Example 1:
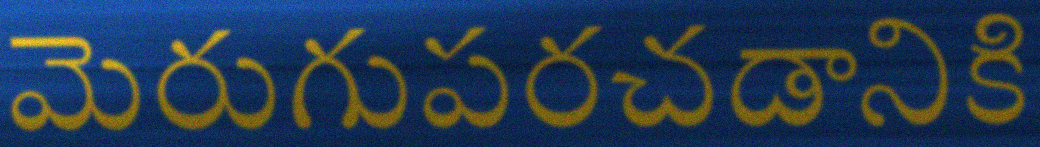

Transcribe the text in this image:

మెరుగుపరచడానికి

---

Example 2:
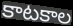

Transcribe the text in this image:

కాటకాల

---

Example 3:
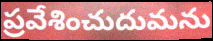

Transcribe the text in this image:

ప్రవేశించుదుమను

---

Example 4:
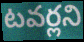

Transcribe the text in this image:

టవర్లని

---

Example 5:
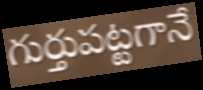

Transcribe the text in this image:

గుర్తుపట్టగానే